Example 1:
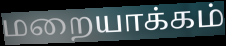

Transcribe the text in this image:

மறையாக்கம்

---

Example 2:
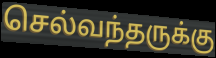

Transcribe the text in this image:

செல்வந்தருக்கு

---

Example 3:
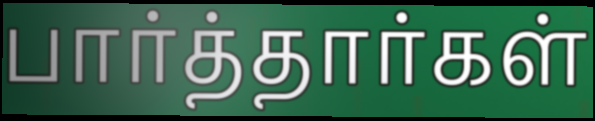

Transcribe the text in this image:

பார்த்தார்கள்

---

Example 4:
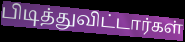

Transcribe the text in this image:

பிடித்துவிட்டார்கள்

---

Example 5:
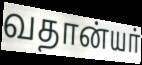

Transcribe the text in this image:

வதான்யர்